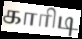
காரிடி